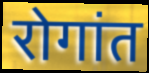
रोगांत